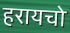
हरायचो